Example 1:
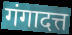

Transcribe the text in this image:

गंगादत्त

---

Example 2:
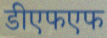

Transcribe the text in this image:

डीएफएफ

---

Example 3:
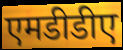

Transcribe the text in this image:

एमडीडीए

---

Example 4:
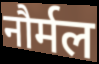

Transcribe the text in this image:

नौर्मल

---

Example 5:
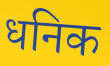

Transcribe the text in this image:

धनिक